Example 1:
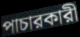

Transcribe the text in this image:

পাচারকারী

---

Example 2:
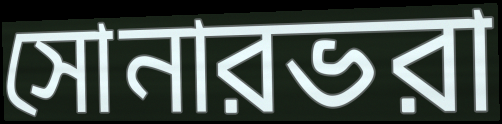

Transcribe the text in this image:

সোনারভরা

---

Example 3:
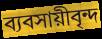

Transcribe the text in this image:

ব্যবসায়ীবৃন্দ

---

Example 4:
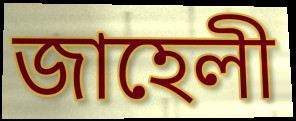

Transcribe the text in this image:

জাহেলী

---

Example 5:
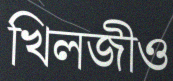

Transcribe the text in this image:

খিলজীও